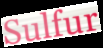
Sulfur